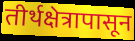
तीर्थक्षेत्रापासून